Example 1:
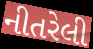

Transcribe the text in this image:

નીતરેલી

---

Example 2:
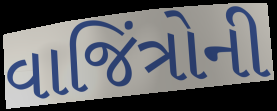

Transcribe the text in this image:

વાજિંત્રોની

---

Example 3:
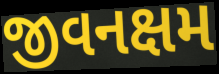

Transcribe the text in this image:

જીવનક્ષમ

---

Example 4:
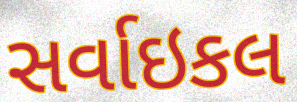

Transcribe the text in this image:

સર્વાઇકલ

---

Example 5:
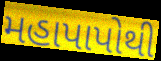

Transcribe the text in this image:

મહાપાપોથી